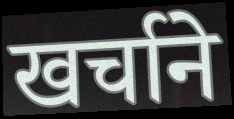
खर्चाने